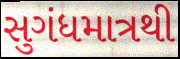
સુગંધમાત્રથી